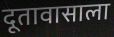
दूतावासाला